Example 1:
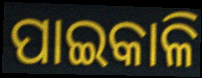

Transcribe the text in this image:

ପାଇକାଳି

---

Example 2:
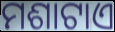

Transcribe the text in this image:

ମଶାଟାଏ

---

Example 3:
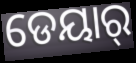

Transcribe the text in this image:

ଡେୟାର୍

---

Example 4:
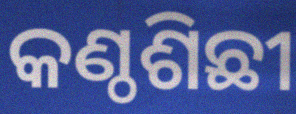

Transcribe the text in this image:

କଣ୍ଠଶିଛୀ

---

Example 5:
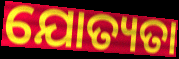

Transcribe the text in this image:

ଯୋତ୍ୟତା